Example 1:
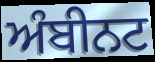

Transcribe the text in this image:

ਅੰਬੀਨਟ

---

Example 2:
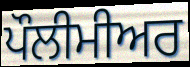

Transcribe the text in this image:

ਪੌਲੀਮੀਅਰ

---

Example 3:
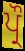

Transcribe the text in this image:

ਪ੍ਰੌ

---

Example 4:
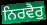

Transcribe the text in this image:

ਨਿਰਵੈਰੁ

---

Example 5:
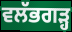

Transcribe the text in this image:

ਵਲੱਭਗੜ੍ਹ